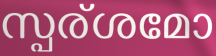
സ്പര്ശമോ